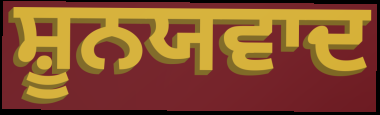
ਸ਼ੂਨਯਵਾਦ